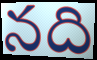
నది